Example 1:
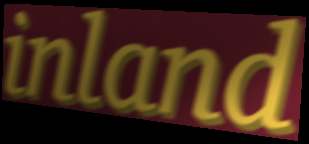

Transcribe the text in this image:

inland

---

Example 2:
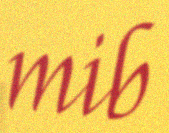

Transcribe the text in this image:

mib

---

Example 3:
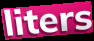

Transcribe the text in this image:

liters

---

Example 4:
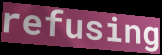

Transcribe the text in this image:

refusing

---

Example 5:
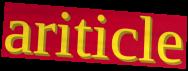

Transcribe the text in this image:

ariticle